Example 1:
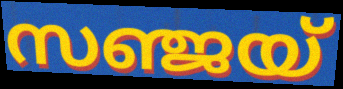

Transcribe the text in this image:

സഞ്ജയ്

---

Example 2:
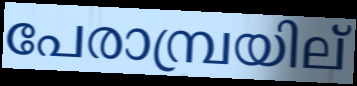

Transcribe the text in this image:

പേരാമ്പ്രയില്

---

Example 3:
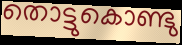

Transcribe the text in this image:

തൊട്ടുകൊണ്ടു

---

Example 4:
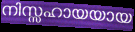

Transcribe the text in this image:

നിസ്സഹായയായ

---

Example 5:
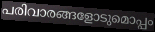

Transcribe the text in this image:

പരിവാരങ്ങളോടുമൊപ്പം